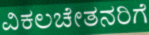
ವಿಕಲಚೇತನರಿಗೆ